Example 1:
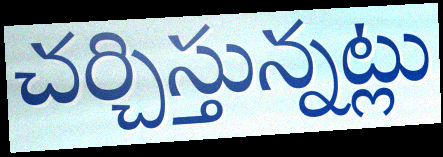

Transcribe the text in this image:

చర్చిస్తున్నట్లు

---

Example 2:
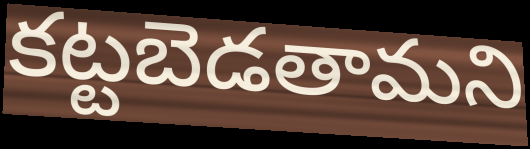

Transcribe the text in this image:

కట్టబెడతామని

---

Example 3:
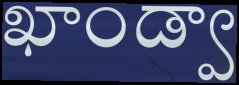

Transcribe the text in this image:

ఖాండ్వా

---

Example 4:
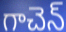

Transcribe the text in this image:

గాచెన్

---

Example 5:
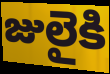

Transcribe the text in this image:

జులైకి